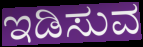
ಇಡಿಸುವ